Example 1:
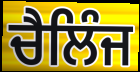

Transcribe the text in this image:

ਚੈਲਿੰਜ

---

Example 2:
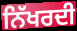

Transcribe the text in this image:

ਨਿੱਖਰਦੀ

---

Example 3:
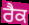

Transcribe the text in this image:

ਰੈਕ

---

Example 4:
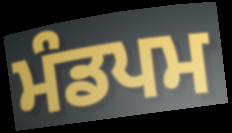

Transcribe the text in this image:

ਮੰਡਪਮ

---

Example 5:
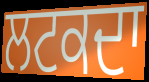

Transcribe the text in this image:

ਲਟਕਦਾ